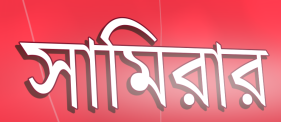
সামিরার